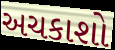
અચકાશો